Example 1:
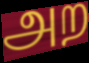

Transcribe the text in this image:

அற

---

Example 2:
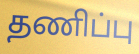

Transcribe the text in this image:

தணிப்பு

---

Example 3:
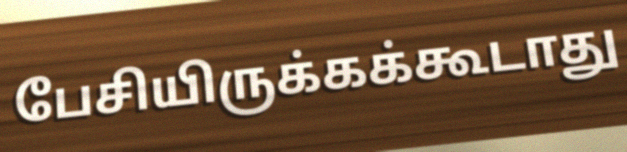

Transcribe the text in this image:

பேசியிருக்கக்கூடாது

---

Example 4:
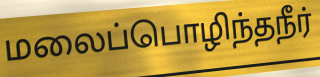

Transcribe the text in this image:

மலைப்பொழிந்தநீர்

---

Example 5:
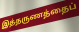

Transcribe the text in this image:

இத்தருணத்தைப்